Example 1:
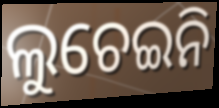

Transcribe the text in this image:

ଲୁଚେଇନି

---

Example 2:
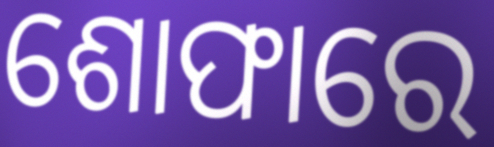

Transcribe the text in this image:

ଶୋଫାରେ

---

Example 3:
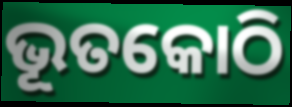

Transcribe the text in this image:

ଭୂତକୋଠି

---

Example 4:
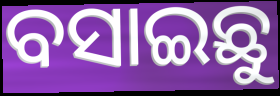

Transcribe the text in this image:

ବସାଇଛୁ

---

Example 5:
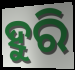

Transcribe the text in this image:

ହୁରି